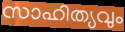
സാഹിത്യവും